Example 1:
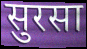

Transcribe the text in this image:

सुरसा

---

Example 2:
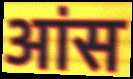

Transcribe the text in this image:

आंस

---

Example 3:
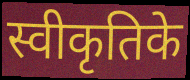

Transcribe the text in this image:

स्वीकृतिके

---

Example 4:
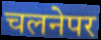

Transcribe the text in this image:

चलनेपर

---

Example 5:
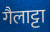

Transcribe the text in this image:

गैलाट्टा